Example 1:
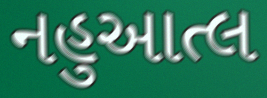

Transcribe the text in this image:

નહુઆત્લ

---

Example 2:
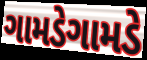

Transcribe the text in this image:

ગામડેગામડે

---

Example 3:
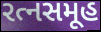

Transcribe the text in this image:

રત્નસમૂહ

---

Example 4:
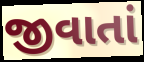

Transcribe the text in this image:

જીવાતાં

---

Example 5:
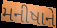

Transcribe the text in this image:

મનીષાને